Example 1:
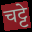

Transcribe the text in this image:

चट्टे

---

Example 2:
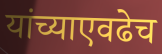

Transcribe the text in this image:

यांच्याएवढेच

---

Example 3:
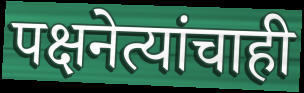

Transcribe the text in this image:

पक्षनेत्यांचाही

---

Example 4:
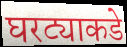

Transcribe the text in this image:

घरट्याकडे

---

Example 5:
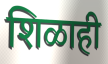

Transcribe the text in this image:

शिळाही